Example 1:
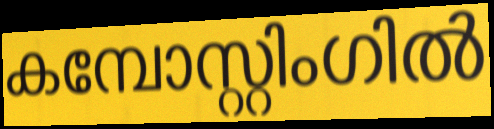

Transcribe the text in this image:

കമ്പോസ്റ്റിംഗിൽ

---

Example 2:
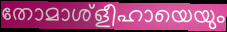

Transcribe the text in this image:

തോമാശ്ളീഹായെയും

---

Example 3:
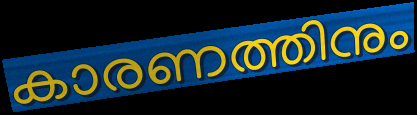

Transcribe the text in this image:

കാരണത്തിനും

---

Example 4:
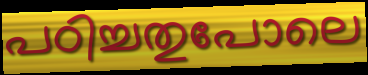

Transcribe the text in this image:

പഠിച്ചതുപോലെ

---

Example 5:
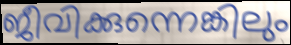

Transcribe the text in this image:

ജീവിക്കുന്നെങ്കിലും